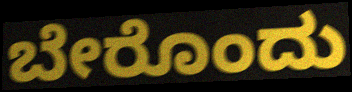
ಬೇರೊಂದು